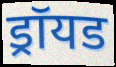
ड्रॉयड